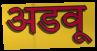
अडवू